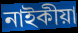
নাইকীয়া